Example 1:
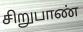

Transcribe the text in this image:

சிறுபாண்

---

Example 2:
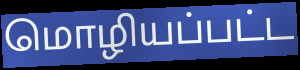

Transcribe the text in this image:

மொழியப்பட்ட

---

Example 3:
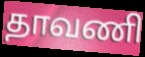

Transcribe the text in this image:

தாவணி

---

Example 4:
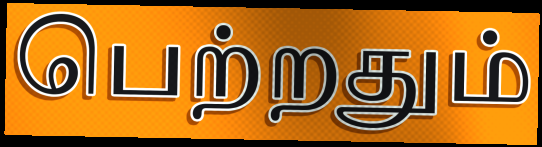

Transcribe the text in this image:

பெற்றதும்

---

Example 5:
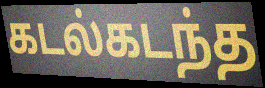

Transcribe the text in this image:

கடல்கடந்த